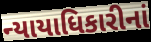
ન્યાયાધિકારીનાં